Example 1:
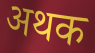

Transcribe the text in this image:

अथक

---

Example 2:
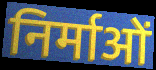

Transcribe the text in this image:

निर्माओं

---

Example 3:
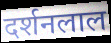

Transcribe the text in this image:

दर्शनलाल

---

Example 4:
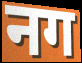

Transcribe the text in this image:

नग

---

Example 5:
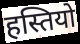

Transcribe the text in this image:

हस्तियो